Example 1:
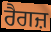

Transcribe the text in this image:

ਰੈਗਜ਼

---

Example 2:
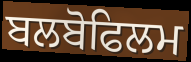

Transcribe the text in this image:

ਬਲਬੋਫਿਲਮ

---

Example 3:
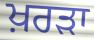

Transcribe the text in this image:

ਖ਼ਰੜਾ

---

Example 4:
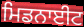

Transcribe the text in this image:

ਮਿਡਨਾਈਟ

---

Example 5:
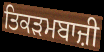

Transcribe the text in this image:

ਤਿਕੜਮਬਾਜ਼ੀ